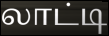
லாட்டி